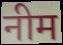
नीम